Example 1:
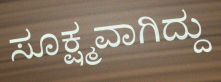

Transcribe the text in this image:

ಸೂಕ್ಷ್ಮವಾಗಿದ್ದು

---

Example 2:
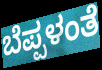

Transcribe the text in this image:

ಬೆಪ್ಪಳಂತೆ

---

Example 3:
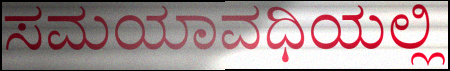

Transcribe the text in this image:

ಸಮಯಾವಧಿಯಲ್ಲಿ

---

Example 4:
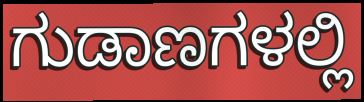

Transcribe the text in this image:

ಗುಡಾಣಗಳಲ್ಲಿ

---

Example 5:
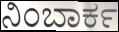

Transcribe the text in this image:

ನಿಂಬಾರ್ಕ